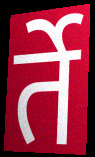
र्ते